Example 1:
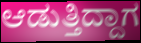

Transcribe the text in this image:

ಆಡುತ್ತಿದ್ದಾಗ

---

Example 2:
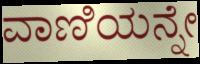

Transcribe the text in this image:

ವಾಣಿಯನ್ನೇ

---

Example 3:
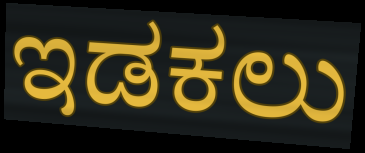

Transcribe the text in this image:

ಇಡಕಲು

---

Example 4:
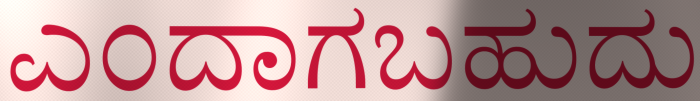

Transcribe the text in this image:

ಎಂದಾಗಬಹುದು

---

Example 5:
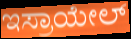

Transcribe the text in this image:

ಇಸ್ರಾಯೇಲ್